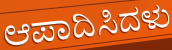
ಆಪಾದಿಸಿದಳು